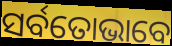
ସର୍ବତୋଭାବେ